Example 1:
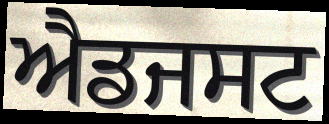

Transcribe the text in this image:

ਐਡਜਸਟ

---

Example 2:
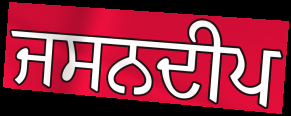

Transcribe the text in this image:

ਜਸਨਦੀਪ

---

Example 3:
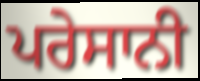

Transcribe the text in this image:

ਪਰੇਸਾਨੀ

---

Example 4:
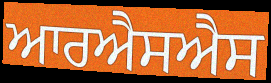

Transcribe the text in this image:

ਆਰਐਸਐਸ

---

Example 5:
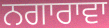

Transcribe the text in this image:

ਨਗਾਰਾਵਾ